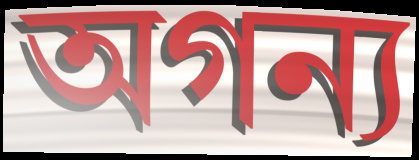
অগন্য